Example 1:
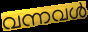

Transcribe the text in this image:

വന്നവൾ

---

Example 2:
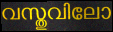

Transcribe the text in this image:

വസ്തുവിലോ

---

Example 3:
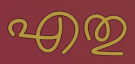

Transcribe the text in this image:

എതു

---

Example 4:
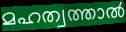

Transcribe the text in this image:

മഹത്വത്താൽ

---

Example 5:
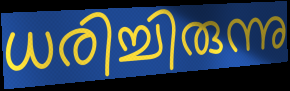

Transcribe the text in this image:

ധരിച്ചിരുന്നു